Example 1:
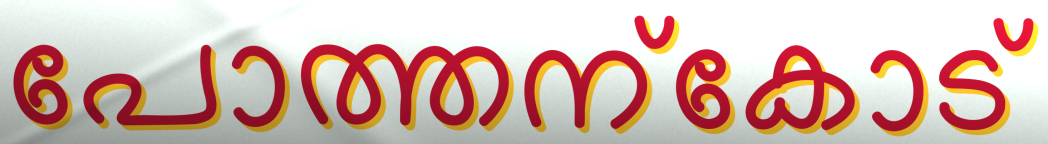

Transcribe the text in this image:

പോത്തന്കോട്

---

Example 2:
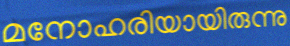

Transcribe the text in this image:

മനോഹരിയായിരുന്നു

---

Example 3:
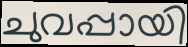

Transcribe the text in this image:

ചുവപ്പായി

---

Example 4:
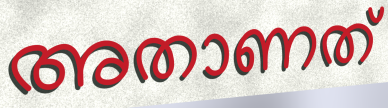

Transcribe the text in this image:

അതാണത്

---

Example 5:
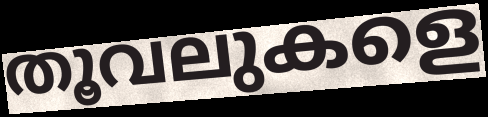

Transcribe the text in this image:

തൂവലുകളെ